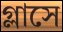
গ্লাসে